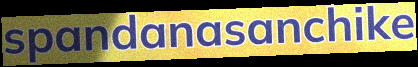
spandanasanchike